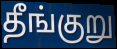
தீங்குறு